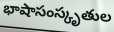
భాషాసంస్కృతుల